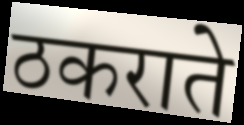
ठकराते